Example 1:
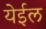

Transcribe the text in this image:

येईल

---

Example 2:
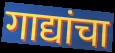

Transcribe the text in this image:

गाद्यांचा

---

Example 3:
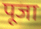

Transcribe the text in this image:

पूजा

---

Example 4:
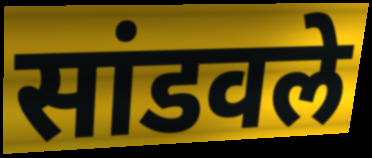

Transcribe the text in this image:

सांडवले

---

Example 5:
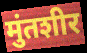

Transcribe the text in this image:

मुंतशीर